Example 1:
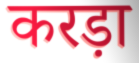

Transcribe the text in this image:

करड़ा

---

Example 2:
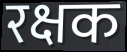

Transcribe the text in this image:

रक्षक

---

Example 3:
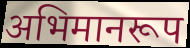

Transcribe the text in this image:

अभिमानरूप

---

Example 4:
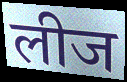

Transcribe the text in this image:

लीज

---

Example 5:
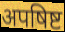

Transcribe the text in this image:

अपषिष्ट